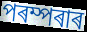
পৰম্পৰাৰ